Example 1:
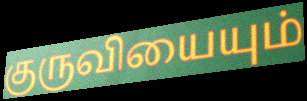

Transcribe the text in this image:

குருவியையும்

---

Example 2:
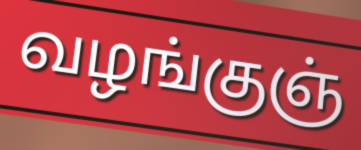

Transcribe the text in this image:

வழங்குஞ்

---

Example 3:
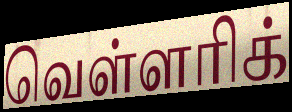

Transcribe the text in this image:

வெள்ளரிக்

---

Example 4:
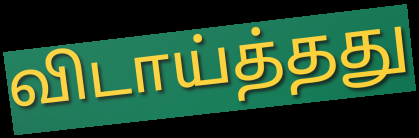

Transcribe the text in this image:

விடாய்த்தது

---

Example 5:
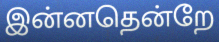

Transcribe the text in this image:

இன்னதென்றே